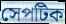
সেপটিক